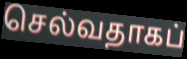
செல்வதாகப்